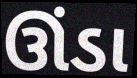
ઊંડા